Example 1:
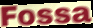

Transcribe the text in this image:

Fossa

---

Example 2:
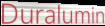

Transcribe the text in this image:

Duralumin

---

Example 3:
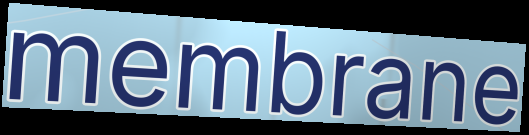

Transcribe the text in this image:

membrane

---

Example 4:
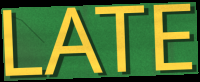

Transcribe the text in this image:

LATE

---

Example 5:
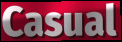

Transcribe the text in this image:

Casual